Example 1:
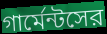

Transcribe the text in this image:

গার্মেন্টসের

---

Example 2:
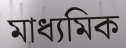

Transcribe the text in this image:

মাধ্যমিক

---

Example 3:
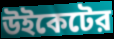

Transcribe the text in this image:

উইকেটের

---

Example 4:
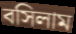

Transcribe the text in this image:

বসিলাম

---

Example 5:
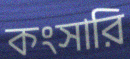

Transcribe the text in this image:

কংসারি